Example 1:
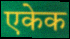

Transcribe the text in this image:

एकेक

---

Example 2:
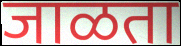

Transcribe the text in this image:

जाळता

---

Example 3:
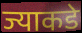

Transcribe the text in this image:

ज्याकडे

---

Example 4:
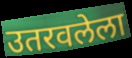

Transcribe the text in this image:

उतरवलेला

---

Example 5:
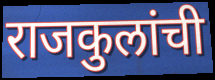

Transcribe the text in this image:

राजकुलांची